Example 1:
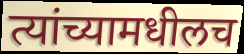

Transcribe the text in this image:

त्यांच्यामधीलच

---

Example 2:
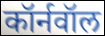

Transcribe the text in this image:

कॉर्नवॉल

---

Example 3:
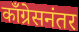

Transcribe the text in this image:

काँग्रेसनंतर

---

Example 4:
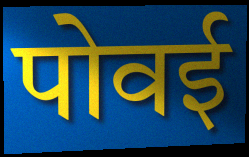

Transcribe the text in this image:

पोवई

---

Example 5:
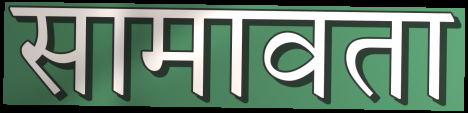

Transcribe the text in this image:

सामावता